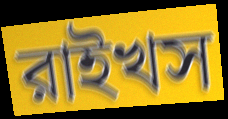
রাইখস